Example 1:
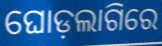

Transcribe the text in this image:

ଘୋଡ଼ଲାଗିରେ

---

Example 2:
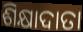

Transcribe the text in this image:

ଶିକ୍ଷାଦାତା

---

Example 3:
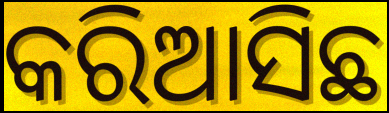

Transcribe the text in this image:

କରିଆସିଛ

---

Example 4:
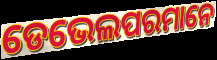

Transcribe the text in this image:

ଡେଭେଲପରମାନେ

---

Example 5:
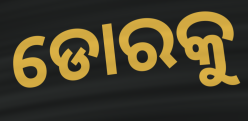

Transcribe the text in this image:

ଡୋରକୁ